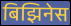
बिझिनेस